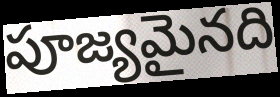
పూజ్యమైనది